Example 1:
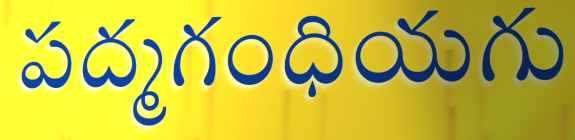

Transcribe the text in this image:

పద్మగంధియగు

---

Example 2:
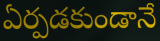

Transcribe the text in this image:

ఏర్పడకుండానే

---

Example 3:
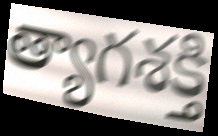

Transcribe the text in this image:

త్యాగశక్తి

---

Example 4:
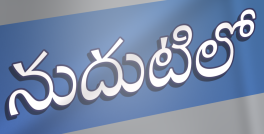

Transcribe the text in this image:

నుదుటిలో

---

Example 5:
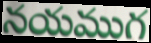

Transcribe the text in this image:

నయముగ